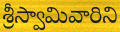
శ్రీస్వామివారిని